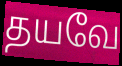
தயவே